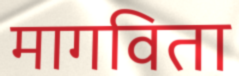
मागविता